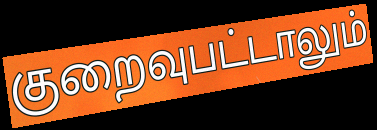
குறைவுபட்டாலும்